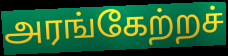
அரங்கேற்றச்